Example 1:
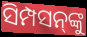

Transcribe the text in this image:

ସିମ୍ପସନ୍‍ଙ୍କୁ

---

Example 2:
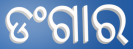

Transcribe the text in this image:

ଡଂଗାର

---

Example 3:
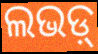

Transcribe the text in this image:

ଲଭଡ଼୍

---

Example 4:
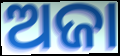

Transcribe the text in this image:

ଅଜା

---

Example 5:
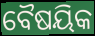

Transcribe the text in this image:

ବୈଷୟିକ